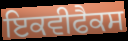
ਇਕਵੀਫੈਕਸ